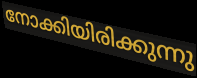
നോക്കിയിരിക്കുന്നു